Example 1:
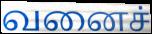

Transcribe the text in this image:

வனைச்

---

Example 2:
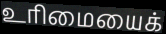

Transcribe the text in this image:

உரிமையைக்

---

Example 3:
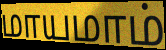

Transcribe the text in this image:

மாயமாம்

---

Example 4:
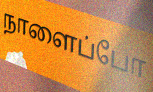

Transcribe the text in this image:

நாளைப்போ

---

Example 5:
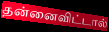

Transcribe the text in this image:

தன்னைவிட்டால்